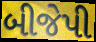
બીજેપી